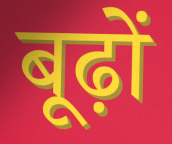
बूढ़ों